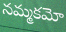
నమ్మకమో